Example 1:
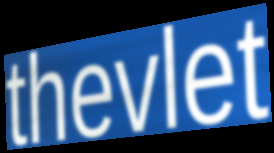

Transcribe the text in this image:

thevlet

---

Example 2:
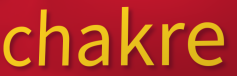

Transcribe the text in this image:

chakre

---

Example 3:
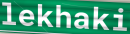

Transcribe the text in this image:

lekhaki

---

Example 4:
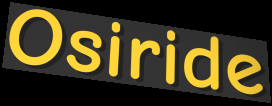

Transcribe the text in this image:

Osiride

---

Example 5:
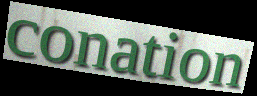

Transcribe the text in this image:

conation